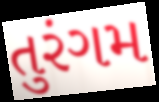
તુરંગમ